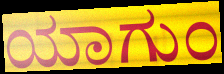
ಯಾಗುಂ